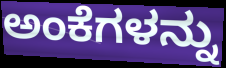
ಅಂಕೆಗಳನ್ನು